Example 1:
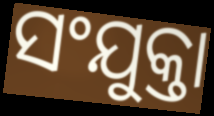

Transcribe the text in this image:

ସଂଯୁକ୍ତା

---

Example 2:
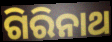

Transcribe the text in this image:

ଗିରିନାଥ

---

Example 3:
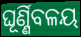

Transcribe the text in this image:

ଘୂର୍ଣ୍ଣିବଳୟ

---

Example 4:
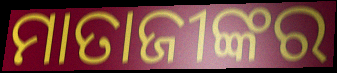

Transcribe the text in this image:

ମାତାଜୀଙ୍କର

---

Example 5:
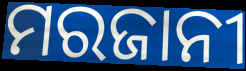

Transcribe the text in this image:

ମରଜାନୀ